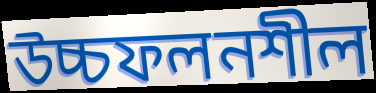
উচ্চফলনশীল